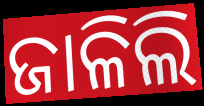
ଜାଳିଲି